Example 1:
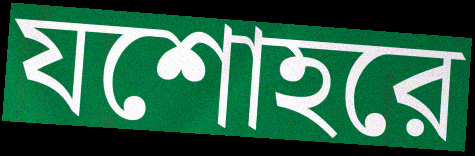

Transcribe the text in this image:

যশোহরে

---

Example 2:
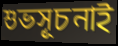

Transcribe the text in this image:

শুভসূচনাই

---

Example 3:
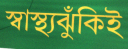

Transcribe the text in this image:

স্বাস্থ্যঝুঁকিই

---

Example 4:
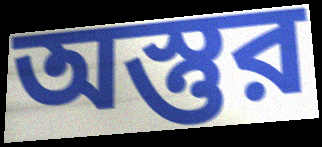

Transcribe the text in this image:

অস্তুর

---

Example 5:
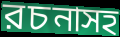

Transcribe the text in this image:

রচনাসহ